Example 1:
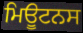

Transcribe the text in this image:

ਮਿਊਟਨਸ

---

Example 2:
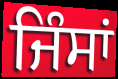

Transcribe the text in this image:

ਜਿੰਸਾਂ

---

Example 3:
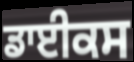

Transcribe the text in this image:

ਡਾਈਕਸ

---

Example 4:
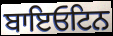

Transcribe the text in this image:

ਬਾਇਓਟਿਨ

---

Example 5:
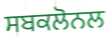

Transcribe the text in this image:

ਸਬਕਲੋਨਲ